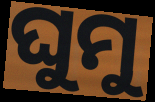
ଘୁମୁ